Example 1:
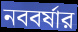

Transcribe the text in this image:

নববর্ষার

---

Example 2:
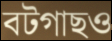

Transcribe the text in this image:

বটগাছও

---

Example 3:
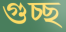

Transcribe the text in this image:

গুচ্ছ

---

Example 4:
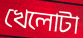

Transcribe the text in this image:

খেলোটা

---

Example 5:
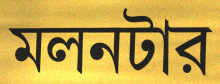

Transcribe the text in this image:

মলনটার